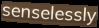
senselessly